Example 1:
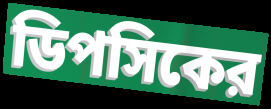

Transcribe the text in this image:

ডিপসিকের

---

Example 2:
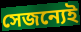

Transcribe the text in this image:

সেজন্যেই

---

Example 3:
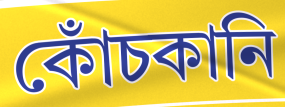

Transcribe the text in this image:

কোঁচকানি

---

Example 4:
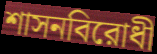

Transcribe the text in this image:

শাসনবিরোধী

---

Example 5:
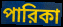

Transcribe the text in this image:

পারিকা